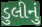
ડુલીનું